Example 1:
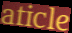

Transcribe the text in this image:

aticle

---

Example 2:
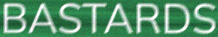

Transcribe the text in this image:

BASTARDS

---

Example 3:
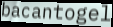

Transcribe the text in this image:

bacantogel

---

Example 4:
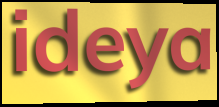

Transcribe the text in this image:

ideya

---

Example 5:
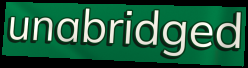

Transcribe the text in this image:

unabridged